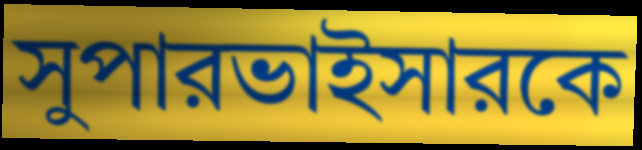
সুপারভাইসারকে